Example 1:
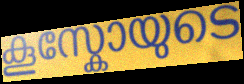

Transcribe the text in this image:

കൂസ്കോയുടെ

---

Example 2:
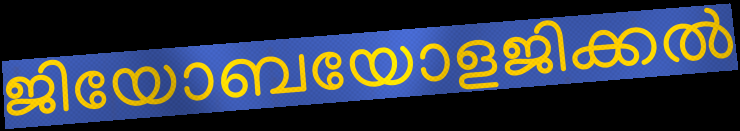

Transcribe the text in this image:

ജിയോബയോളജിക്കൽ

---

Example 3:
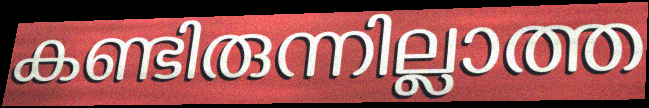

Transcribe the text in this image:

കണ്ടിരുന്നില്ലാത്ത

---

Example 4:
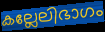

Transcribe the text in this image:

കല്ലേലിഭാഗം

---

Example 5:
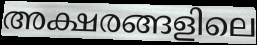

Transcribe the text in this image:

അക്ഷരങ്ങളിലെ